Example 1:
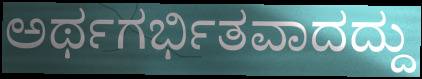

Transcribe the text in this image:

ಅರ್ಥಗರ್ಭಿತವಾದದ್ದು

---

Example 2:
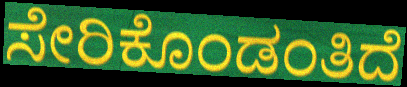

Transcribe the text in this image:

ಸೇರಿಕೊಂಡಂತಿದೆ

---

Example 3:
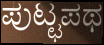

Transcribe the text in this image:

ಪುಟ್ಟಪಥ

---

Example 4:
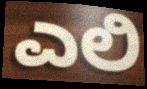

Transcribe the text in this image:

ಎಲಿ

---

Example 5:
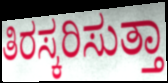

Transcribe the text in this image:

ತಿರಸ್ಕರಿಸುತ್ತಾ